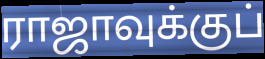
ராஜாவுக்குப்